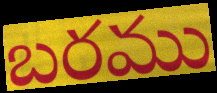
బరము